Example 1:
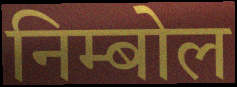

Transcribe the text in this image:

निम्बोल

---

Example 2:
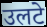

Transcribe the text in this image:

उलटे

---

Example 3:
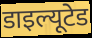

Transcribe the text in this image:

डाइल्यूटेड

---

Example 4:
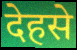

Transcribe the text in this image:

देहसे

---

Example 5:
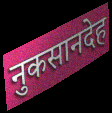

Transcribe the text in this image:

नुकसानदेह